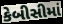
કેબીસીમાં